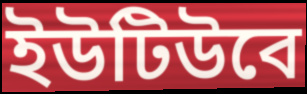
ইউটিউবে